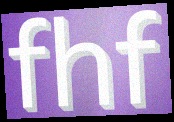
fhf